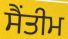
ਸੈਂਤੀਮ